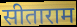
सीताराम